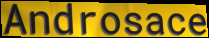
Androsace